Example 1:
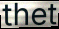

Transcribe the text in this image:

thet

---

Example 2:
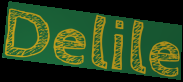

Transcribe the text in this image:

Delile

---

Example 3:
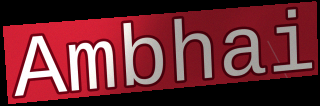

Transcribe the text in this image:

Ambhai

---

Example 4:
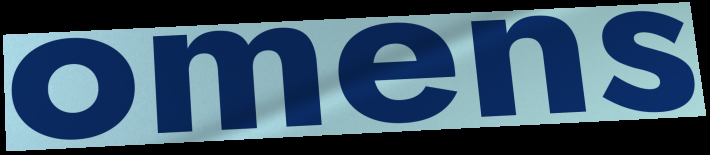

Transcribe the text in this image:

omens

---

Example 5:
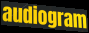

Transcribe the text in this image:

audiogram